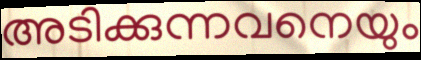
അടിക്കുന്നവനെയും